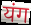
यंग